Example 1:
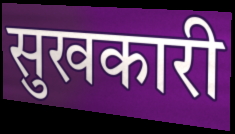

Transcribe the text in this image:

सुखकारी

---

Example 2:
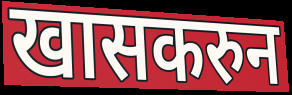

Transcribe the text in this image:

खासकरुन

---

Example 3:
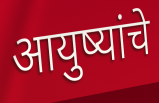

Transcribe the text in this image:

आयुष्यांचे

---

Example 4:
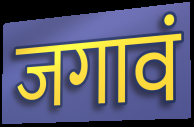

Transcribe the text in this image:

जगावं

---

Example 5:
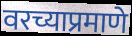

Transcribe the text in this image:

वरच्याप्रमाणे